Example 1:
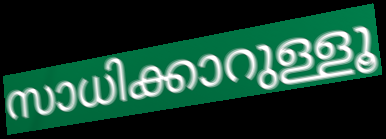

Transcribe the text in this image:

സാധിക്കാറുള്ളൂ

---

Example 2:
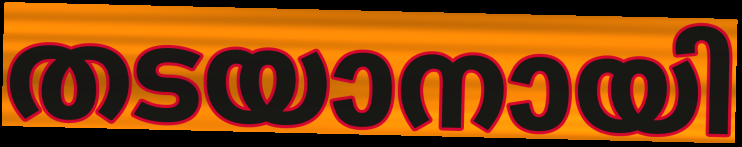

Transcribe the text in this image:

തടയാനായി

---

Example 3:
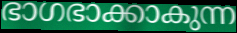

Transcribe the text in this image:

ഭാഗഭാക്കാകുന്ന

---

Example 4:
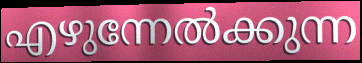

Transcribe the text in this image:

എഴുന്നേൽക്കുന്ന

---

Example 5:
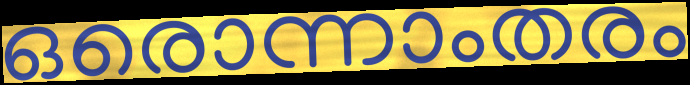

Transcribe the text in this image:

ഒരൊന്നാംതരം